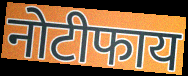
नोटीफाय